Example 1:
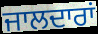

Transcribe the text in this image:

ਜਾਲਦਾਰਾਂ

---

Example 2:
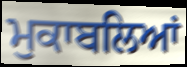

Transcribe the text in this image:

ਮੁਕਾਬਲਿਆਂ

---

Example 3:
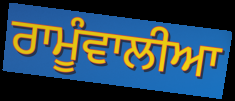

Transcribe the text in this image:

ਰਾਮੂੰਵਾਲੀਆ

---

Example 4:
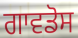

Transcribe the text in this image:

ਗਾਵਡੋਸ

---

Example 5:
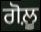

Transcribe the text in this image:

ਗੋਲ਼ੂ